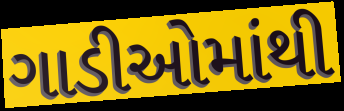
ગાડીઓમાંથી